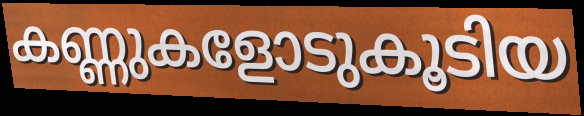
കണ്ണുകളോടുകൂടിയ